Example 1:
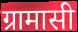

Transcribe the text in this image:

ग्रामासी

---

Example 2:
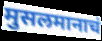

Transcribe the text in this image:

मुसलमानाचं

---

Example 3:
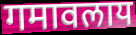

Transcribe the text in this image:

गमावलाय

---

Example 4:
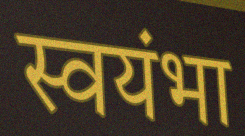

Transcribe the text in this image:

स्वयंभा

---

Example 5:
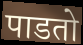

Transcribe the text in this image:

पाडतो